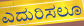
ಎದುರಿಸಲೂ